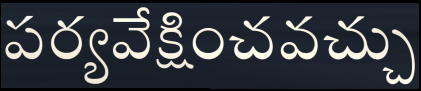
పర్యవేక్షించవచ్చు